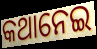
କଥାନେଇ